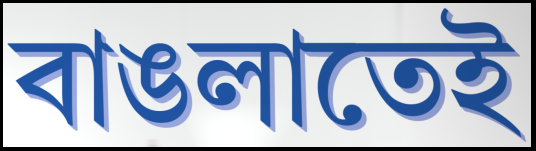
বাঙলাতেই